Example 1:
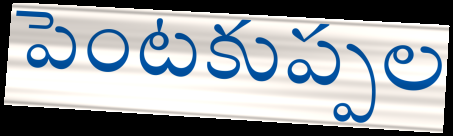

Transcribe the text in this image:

పెంటకుప్పల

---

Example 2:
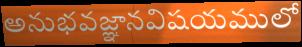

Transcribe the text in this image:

అనుభవజ్ఞానవిషయములో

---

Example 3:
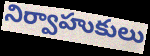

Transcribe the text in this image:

నిర్వాహుకులు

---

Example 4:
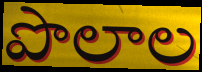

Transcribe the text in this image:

పొలాల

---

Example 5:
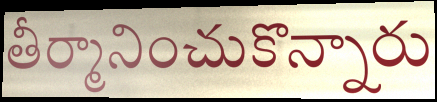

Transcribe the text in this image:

తీర్మానించుకొన్నారు